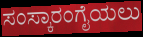
ಸಂಸ್ಕಾರಂಗೈಯಲು